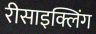
रीसाइक्लिंग